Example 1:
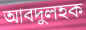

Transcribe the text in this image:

আবদুলহক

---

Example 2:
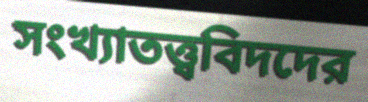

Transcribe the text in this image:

সংখ্যাতত্ত্ববিদদের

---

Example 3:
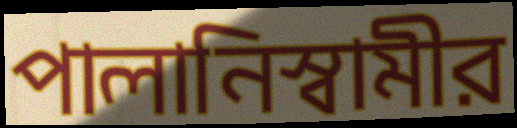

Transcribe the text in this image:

পালানিস্বামীর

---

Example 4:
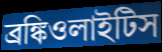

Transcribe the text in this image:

ব্রঙ্কিওলাইটিস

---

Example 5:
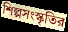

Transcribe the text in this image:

শিল্পসংস্কৃতির